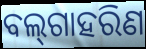
ବଲ୍‌ଗାହରିଣ